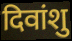
दिवांशु